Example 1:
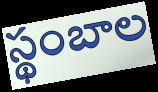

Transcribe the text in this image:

స్థంబాల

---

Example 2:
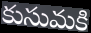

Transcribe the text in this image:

కుసుమకి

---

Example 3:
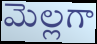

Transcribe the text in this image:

మెల్లగా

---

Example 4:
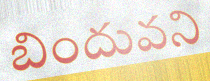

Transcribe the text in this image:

బిందువని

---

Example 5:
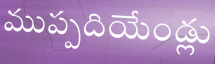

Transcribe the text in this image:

ముప్పదియేండ్లు